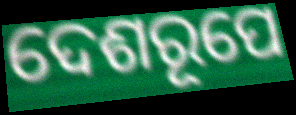
ଦେଶରୂପେ